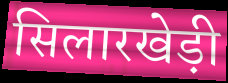
सिलारखेड़ी